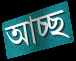
আচ্ছ